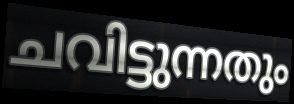
ചവിട്ടുന്നതും